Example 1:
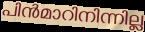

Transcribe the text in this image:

പിൻമാറിനിന്നില്ല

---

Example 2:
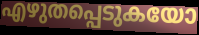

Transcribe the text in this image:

എഴുതപ്പെടുകയോ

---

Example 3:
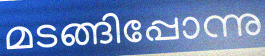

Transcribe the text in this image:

മടങ്ങിപ്പോന്നു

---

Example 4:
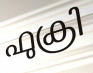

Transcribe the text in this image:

ഫുക്രി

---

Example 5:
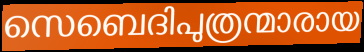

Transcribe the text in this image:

സെബെദിപുത്രന്മാരായ